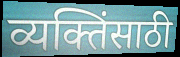
व्यक्तिंसाठी